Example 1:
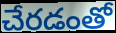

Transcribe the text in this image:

చేరడంతో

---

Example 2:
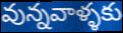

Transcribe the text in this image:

వున్నవాళ్ళకు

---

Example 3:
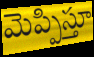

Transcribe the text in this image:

మెప్పిస్తూ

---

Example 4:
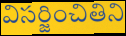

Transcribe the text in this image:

విసర్జించితిని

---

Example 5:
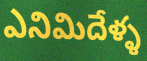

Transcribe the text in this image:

ఎనిమిదేళ్ళ